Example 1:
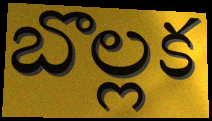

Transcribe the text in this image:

బొల్లక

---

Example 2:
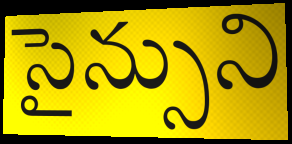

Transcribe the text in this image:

సైన్సుని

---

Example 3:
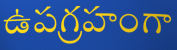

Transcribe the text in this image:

ఉపగ్రహంగా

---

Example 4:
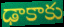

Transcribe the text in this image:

ఢాకాకు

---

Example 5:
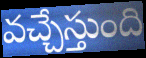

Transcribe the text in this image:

వచ్చేస్తుంది